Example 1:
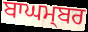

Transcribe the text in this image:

ਬਾਘਮ੍ਬਰ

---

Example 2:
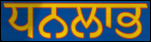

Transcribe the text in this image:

ਧਨਲਾਭ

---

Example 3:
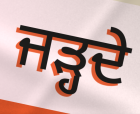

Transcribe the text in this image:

ਜੜ੍ਹਦੇ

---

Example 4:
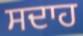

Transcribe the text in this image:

ਸਦਾਹ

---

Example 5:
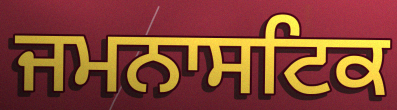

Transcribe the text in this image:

ਜਮਨਾਸਟਿਕ